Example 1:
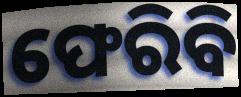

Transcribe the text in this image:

ଫେରିବି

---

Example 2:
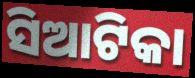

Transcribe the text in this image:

ସିଆଟିକା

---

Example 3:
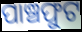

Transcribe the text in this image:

ପାଞ୍ଚଫୁଟ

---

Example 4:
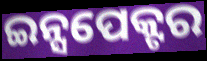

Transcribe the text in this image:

ଇନ୍ସପେକ୍ଟର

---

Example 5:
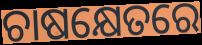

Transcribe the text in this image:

ଚାଷକ୍ଷେତରେ